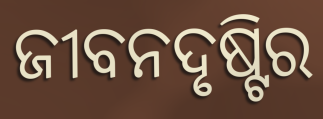
ଜୀବନଦୃଷ୍ଟିର